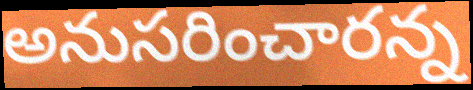
అనుసరించారన్న